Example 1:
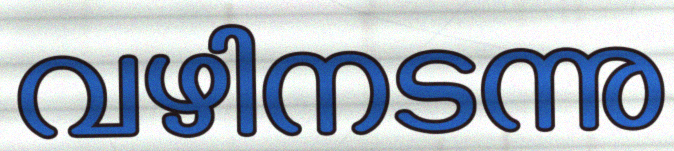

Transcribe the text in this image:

വഴിനടന്നു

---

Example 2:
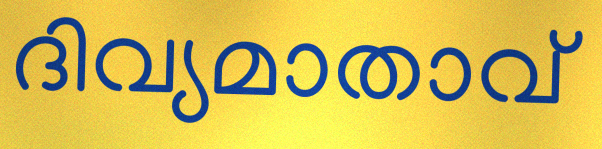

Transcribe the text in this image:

ദിവ്യമാതാവ്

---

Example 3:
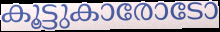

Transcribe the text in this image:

കൂട്ടുകാരോടോ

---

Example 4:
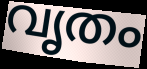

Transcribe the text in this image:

വൃതം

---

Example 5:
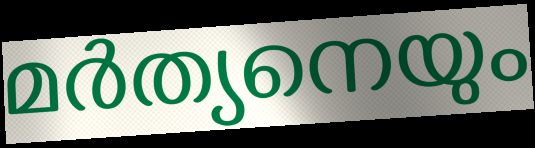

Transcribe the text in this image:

മർത്യനെയും